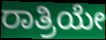
ರಾತ್ರಿಯೇ